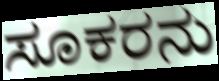
ಸೂಕರನು